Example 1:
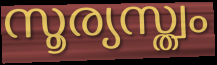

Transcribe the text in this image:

സൂര്യസ്ത്വം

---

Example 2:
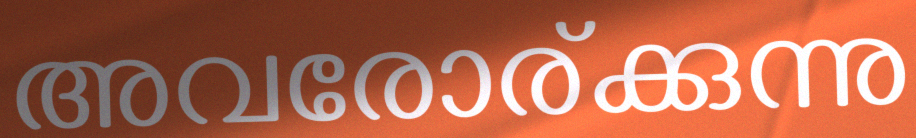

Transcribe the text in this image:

അവരോര്ക്കുന്നു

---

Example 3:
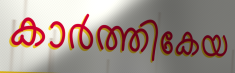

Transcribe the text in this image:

കാർത്തികേയ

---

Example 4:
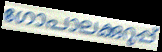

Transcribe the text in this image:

ഗോപാലക്കുറുപ്പ്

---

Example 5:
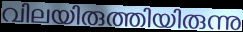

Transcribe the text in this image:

വിലയിരുത്തിയിരുന്നു